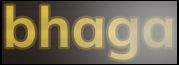
bhaga